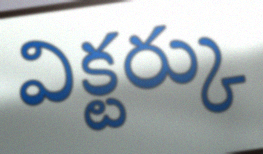
విక్టర్కు